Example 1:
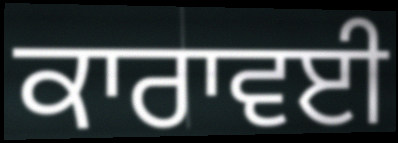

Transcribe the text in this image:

ਕਾਰਾਵਈ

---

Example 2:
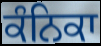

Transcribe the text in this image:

ਕੰਨਿਕਾ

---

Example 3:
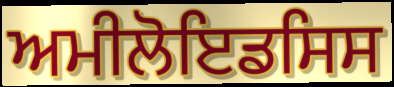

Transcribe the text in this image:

ਅਮੀਲੋਇਡਸਿਸ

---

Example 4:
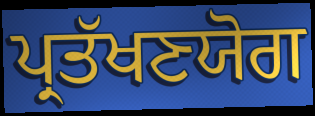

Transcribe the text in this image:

ਪ੍ਰਤੱਖਣਯੋਗ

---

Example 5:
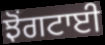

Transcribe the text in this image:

ਝੋਂਗਟਾਈ